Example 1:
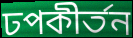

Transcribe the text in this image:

ঢপকীর্তন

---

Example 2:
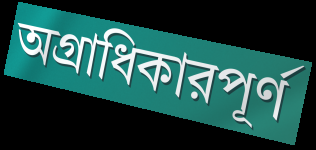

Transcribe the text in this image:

অগ্রাধিকারপূর্ণ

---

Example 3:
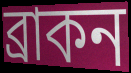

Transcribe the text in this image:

ব্রাকন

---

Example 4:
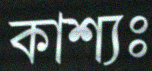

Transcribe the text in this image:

কাশ্যঃ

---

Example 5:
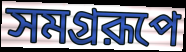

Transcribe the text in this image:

সমগ্ররূপে